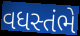
વધસ્તંભે